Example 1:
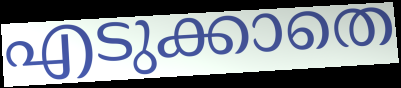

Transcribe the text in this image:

എടുക്കാതെ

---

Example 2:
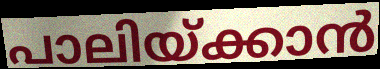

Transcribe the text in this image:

പാലിയ്ക്കാൻ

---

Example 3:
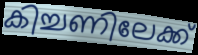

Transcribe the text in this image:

കിച്ചണിലേക്ക്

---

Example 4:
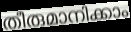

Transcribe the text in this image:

തീരുമാനിക്കാം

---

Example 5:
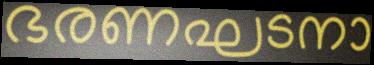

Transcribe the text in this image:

ഭരണഘടനാ